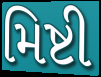
મિષ્ટી